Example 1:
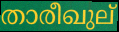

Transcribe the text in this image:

താരീഖുല്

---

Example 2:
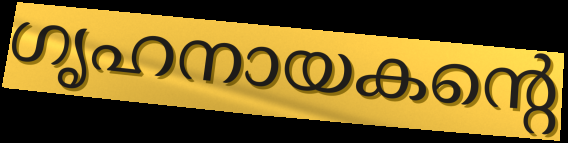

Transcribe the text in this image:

ഗൃഹനായകന്റെ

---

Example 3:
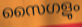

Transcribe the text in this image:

സൈഗളും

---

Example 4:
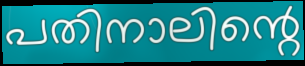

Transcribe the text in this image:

പതിനാലിന്റെ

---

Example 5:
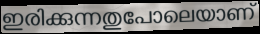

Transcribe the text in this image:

ഇരിക്കുന്നതുപോലെയാണ്